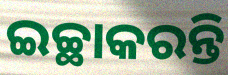
ଇଚ୍ଛାକରନ୍ତି